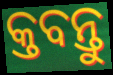
କ୍ତବନ୍ତୁ